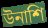
উনাশি